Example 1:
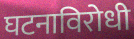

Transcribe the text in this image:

घटनाविरोधी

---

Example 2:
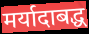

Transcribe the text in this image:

मर्यादाबद्ध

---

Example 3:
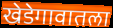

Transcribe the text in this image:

खेडेगावातला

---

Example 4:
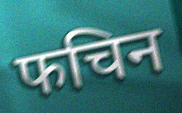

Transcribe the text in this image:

फचिन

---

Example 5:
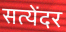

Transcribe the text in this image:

सत्येंदर